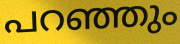
പറഞ്ഞും